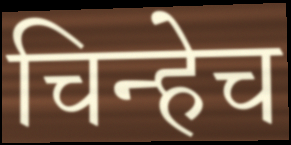
चिन्हेच